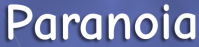
Paranoia